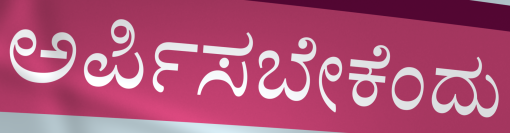
ಅರ್ಪಿಸಬೇಕೆಂದು